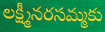
లక్ష్మీనరసమ్మకు